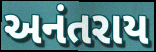
અનંતરાય